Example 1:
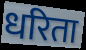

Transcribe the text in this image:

धरिता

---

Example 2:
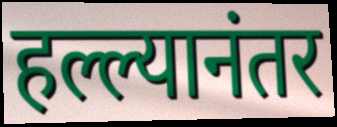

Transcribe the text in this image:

हल्ल्यानंतर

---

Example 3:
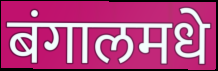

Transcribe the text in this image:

बंगालमधे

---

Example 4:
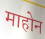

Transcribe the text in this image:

माहोन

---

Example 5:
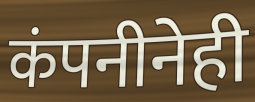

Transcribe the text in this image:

कंपनीनेही